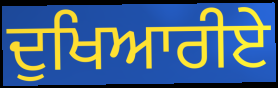
ਦੁਖਿਆਰੀਏ